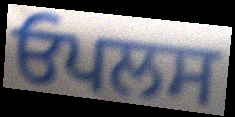
ਓਪਲਸ